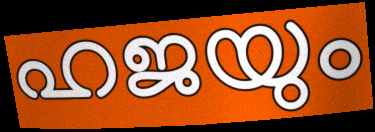
ഹജയും